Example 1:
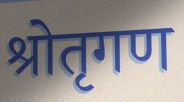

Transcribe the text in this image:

श्रोतृगण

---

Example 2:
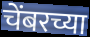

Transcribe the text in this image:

चेंबरच्या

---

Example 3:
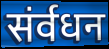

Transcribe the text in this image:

संर्वधन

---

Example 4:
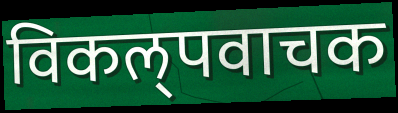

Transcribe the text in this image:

विकल्पवाचक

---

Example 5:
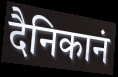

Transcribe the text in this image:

दैनिकानं